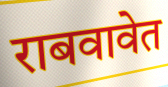
राबवावेत